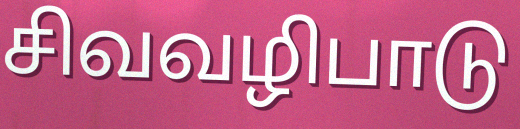
சிவவழிபாடு